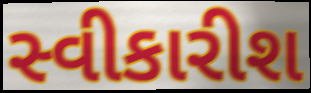
સ્વીકારીશ